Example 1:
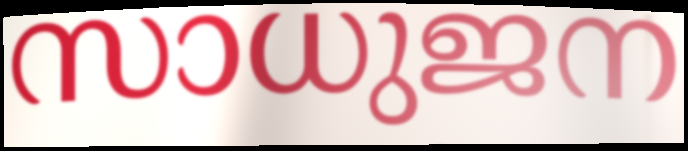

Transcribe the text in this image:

സാധുജന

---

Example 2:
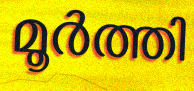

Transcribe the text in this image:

മൂർത്തി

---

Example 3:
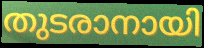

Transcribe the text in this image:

തുടരാനായി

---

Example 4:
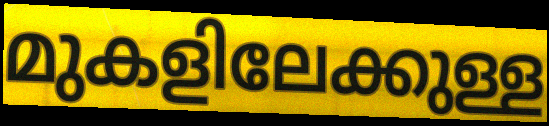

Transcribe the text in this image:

മുകളിലേക്കുള്ള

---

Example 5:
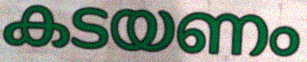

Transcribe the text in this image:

കടയണം